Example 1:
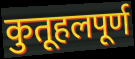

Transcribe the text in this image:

कुतूहलपूर्ण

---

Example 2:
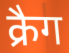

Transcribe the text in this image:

क्रैग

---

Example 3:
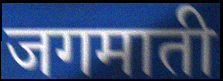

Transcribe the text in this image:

जगमाती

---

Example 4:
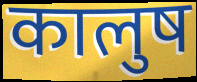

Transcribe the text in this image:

कालुष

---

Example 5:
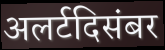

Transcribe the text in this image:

अलर्टदिसंबर